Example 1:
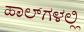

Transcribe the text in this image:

ಹಾಲ್‌ಗಳಲ್ಲಿ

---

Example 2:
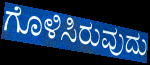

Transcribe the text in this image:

ಗೊಳಿಸಿರುವುದು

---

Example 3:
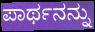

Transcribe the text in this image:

ಪಾರ್ಥನನ್ನು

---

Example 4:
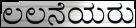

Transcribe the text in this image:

ಲಲನೆಯರು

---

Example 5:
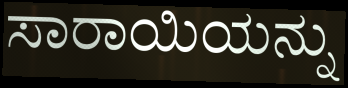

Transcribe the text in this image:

ಸಾರಾಯಿಯನ್ನು